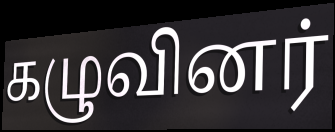
கழுவினர்